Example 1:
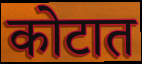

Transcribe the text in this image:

कोटात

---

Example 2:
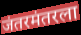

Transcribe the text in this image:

जंतरमंतरला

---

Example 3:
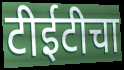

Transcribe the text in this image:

टीईटीचा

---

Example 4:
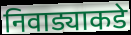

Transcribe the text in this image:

निवाड्याकडे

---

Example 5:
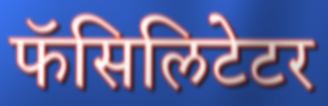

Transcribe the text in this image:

फॅसिलिटेटर